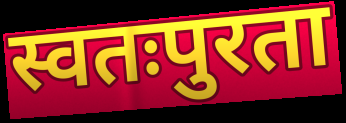
स्वतःपुरता